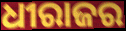
ଧୀରାଜର